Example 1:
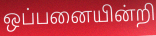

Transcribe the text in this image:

ஒப்பனையின்றி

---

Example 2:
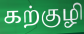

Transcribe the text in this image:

கற்குழி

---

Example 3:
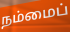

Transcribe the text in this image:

நம்மைப்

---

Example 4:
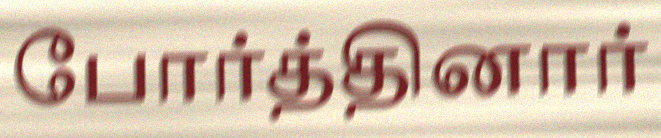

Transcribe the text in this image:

போர்த்தினார்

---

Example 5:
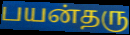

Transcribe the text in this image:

பயன்தரு